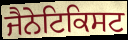
ਜੈਨੇਟਿਕਿਸਟ